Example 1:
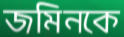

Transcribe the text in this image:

জমিনকে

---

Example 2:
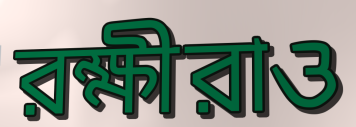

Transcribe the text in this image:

রক্ষীরাও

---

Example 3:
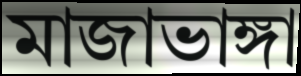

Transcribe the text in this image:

মাজাভাঙ্গা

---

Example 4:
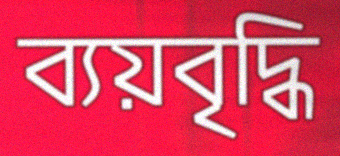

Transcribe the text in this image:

ব্যয়বৃদ্ধি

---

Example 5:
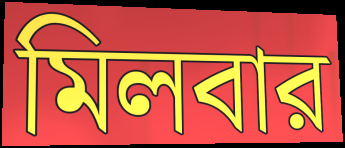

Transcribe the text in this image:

মিলবার